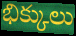
భిక్కులు